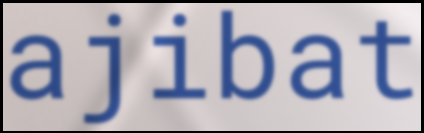
ajibat